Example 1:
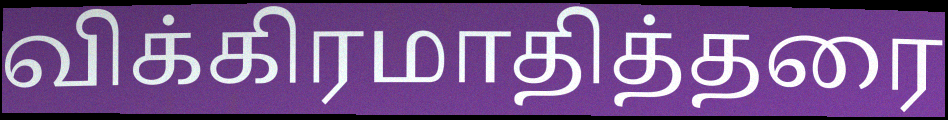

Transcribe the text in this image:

விக்கிரமாதித்தரை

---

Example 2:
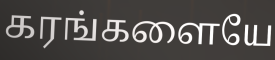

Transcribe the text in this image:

கரங்களையே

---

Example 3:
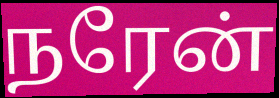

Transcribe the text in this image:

நரேன்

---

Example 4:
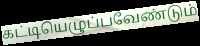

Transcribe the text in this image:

கட்டியெழுப்பவேண்டும்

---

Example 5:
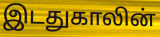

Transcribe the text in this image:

இடதுகாலின்